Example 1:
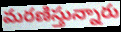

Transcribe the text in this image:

మరణిస్తున్నారు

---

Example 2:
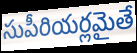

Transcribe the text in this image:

సుపీరియర్లమైతే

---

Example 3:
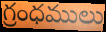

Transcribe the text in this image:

గ్రంధములు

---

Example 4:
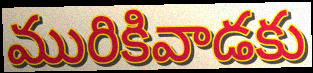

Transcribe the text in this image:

మురికివాడకు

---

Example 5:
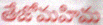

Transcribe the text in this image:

తేజోమహిమ